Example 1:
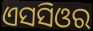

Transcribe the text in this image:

ଏସସିଓର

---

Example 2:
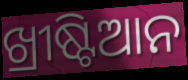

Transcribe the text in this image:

ଖ୍ରୀଷ୍ଟିଆନ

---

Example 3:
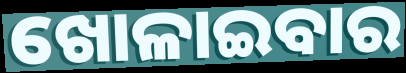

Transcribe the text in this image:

ଖୋଳାଇବାର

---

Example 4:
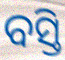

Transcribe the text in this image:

ବସ୍ତି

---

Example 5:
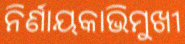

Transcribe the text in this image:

ନିର୍ଣାୟକାଭିମୁଖୀ